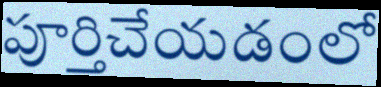
పూర్తిచేయడంలో